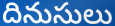
దినుసులు